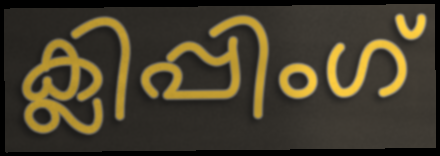
ക്ലിപ്പിംഗ്